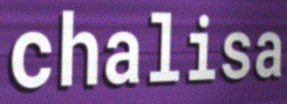
chalisa